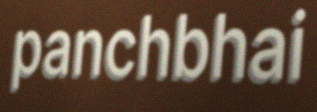
panchbhai